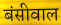
बंसीवाल